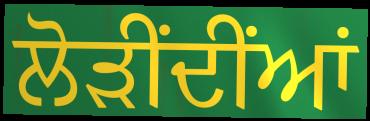
ਲੋੜੀਂਦੀਂਆਂ